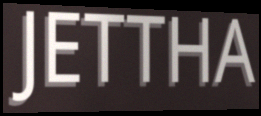
JETTHA